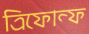
ত্রিফোন্ফ